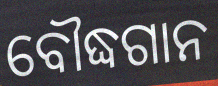
ବୌଦ୍ଧଗାନ